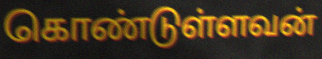
கொண்டுள்ளவன்